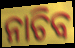
ନାଚିବ